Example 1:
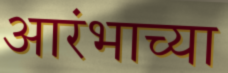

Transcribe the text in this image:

आरंभाच्या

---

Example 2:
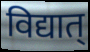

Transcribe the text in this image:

विद्यात्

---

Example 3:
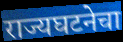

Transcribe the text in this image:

राज्यघटनेचा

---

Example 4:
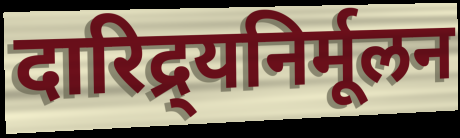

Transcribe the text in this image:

दारिद्र्यनिर्मूलन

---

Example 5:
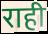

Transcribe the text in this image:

राही